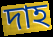
দাহ